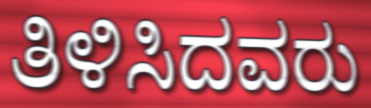
ತಿಳಿಸಿದವರು